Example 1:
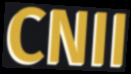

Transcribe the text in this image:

CNII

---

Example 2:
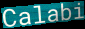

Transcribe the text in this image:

Calabi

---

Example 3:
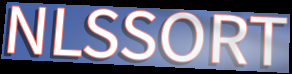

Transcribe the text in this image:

NLSSORT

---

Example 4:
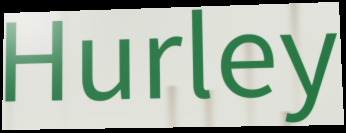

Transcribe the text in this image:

Hurley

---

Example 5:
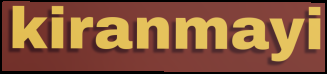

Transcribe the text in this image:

kiranmayi